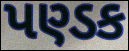
પણ્ડક